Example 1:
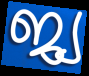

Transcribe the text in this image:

ജ്യ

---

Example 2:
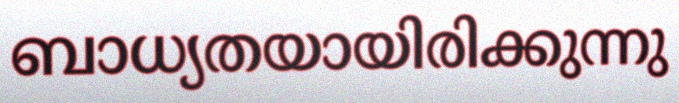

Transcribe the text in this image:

ബാധ്യതയായിരിക്കുന്നു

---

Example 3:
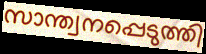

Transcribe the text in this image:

സാന്ത്വനപ്പെടുത്തി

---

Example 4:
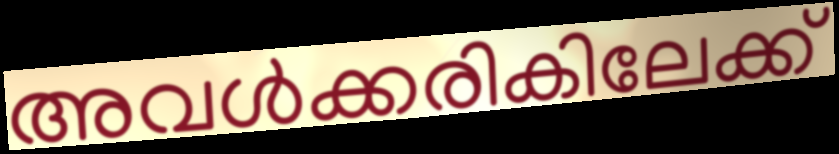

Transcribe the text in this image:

അവൾക്കരികിലേക്ക്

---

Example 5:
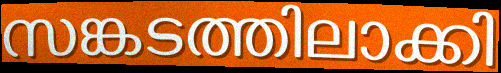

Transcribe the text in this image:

സങ്കടത്തിലാക്കി